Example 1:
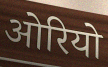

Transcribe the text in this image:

ओरियो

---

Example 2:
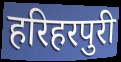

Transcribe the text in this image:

हरिहरपुरी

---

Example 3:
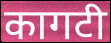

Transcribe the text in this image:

कागटी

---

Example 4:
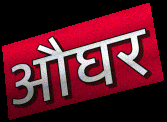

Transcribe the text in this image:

औघर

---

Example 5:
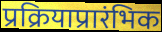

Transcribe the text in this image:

प्रक्रियाप्रारंभिक